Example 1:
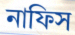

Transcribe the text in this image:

নাফিস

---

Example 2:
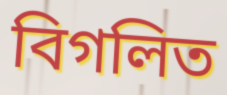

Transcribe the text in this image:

বিগলিত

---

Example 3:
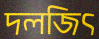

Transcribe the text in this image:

দলজিৎ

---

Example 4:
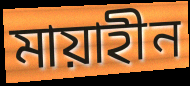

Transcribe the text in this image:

মায়াহীন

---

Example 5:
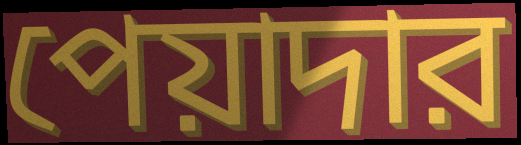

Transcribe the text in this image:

পেয়াদার